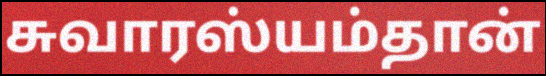
சுவாரஸ்யம்தான்